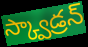
స్క్వాడ్రన్